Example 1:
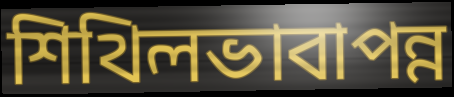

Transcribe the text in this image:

শিথিলভাবাপন্ন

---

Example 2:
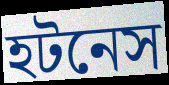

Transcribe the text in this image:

হটনেস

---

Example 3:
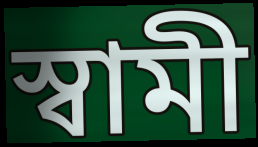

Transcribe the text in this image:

স্বামী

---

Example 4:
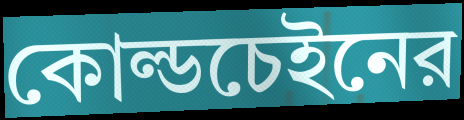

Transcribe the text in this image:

কোল্ডচেইনের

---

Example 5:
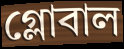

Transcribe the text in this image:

গ্লোবাল